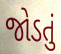
જોડતું